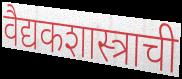
वैद्यकशास्त्राची